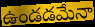
ఉండడమేనా